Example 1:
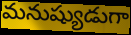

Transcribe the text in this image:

మనుష్యుడుగా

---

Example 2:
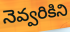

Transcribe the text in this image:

నెవ్వరికిని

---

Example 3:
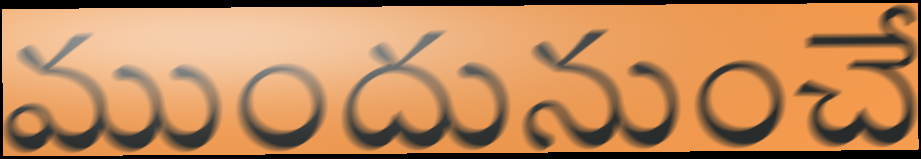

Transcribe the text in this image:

ముందునుంచే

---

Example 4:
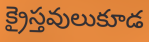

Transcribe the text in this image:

క్రైస్తవులుకూడ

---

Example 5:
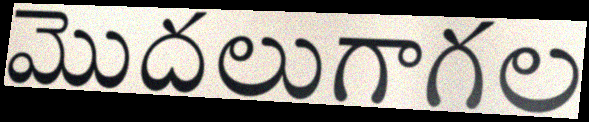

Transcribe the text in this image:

మొదలుగాగల